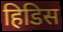
हिडिस